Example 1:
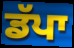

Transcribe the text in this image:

ਡੱਪਾ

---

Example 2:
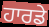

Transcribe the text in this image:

ਹਾਰਡੇ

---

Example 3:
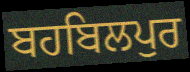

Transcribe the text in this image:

ਬਹਬਿਲਪੁਰ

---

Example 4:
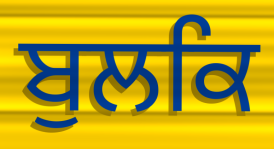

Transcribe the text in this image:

ਬੁਲਕਿ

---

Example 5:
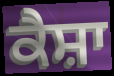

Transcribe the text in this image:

ਕੈਸ਼ਾ